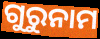
ଗୁରୁନାମ